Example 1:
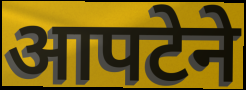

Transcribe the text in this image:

आपटेने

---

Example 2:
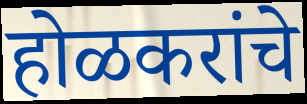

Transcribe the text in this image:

होळकरांचे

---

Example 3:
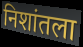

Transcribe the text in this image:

निशांतला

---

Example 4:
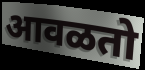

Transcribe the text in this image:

आवळतो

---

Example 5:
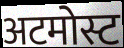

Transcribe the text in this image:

अटमोस्ट